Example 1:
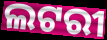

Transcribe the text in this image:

ଲଟରୀ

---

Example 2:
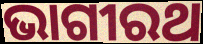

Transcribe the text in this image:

ଭାଗୀରଥ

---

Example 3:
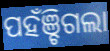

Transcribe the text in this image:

ପହଁଞ୍ଚିଗଲା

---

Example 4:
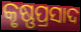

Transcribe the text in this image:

କୃଷ୍ଣପ୍ରସାଦ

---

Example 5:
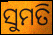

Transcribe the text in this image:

ସୁମତି